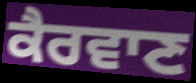
ਕੈਰਵਾਣ